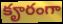
కౄరంగా